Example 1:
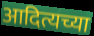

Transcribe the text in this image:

आदित्यच्या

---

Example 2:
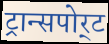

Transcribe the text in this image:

ट्रान्सपोर्ट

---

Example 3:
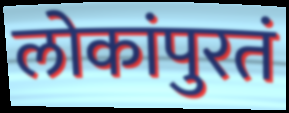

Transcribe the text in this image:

लोकांपुरतं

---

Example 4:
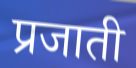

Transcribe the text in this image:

प्रजाती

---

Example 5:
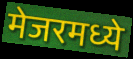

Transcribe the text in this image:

मेजरमध्ये